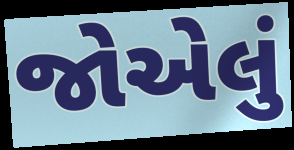
જોએલું